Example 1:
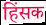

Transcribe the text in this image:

हिंसक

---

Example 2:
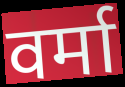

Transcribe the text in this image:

वर्मा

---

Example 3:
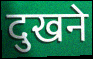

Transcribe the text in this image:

दुखने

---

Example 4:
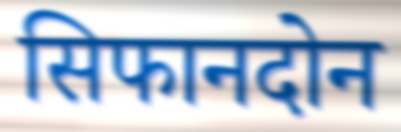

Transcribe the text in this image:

सिफानदोन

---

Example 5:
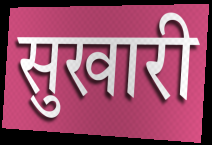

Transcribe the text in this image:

सुखारी